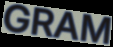
GRAM